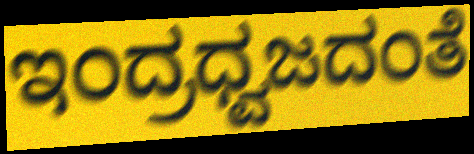
ಇಂದ್ರಧ್ವಜದಂತೆ